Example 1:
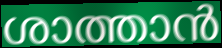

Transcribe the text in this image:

ശാത്താൻ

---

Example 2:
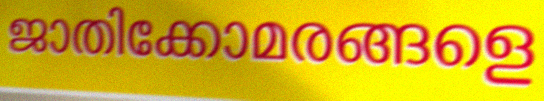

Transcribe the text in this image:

ജാതിക്കോമരങ്ങളെ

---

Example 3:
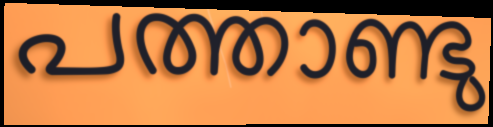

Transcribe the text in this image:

പത്താണ്ടു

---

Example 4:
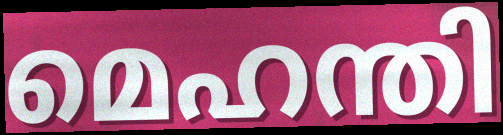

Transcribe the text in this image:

മെഹന്തി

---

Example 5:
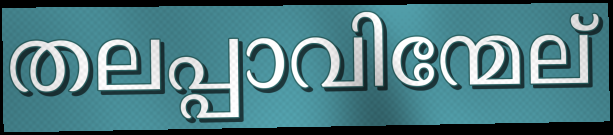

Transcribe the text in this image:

തലപ്പാവിന്മേല്